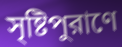
সৃষ্টিপুরাণে